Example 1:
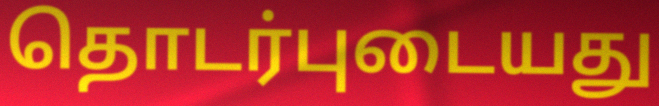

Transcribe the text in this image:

தொடர்புடையது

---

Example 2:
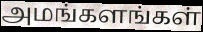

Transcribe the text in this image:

அமங்களங்கள்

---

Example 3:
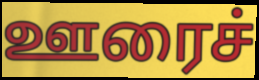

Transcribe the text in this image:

ஊரைச்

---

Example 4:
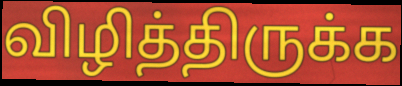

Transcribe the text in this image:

விழித்திருக்க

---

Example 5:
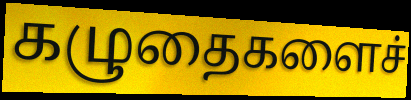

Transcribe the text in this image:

கழுதைகளைச்